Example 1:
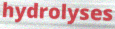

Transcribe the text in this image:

hydrolyses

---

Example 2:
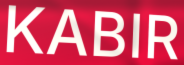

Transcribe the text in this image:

KABIR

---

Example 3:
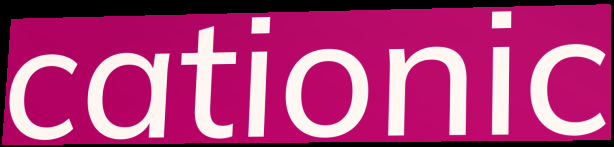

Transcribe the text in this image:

cationic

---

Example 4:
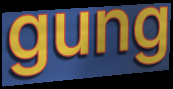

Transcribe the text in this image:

gung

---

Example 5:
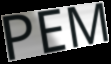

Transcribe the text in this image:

PEM